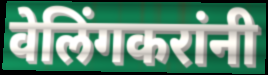
वेलिंगकरांनी